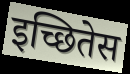
इच्छितेस